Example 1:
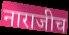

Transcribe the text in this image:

नाराजीच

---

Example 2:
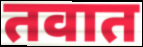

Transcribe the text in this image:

तवात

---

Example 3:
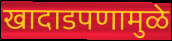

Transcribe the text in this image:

खादाडपणामुळे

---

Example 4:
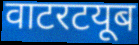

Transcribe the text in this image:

वाटरटयूब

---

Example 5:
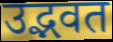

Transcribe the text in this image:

उद्भवत